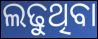
ଲଢୁଥିବା